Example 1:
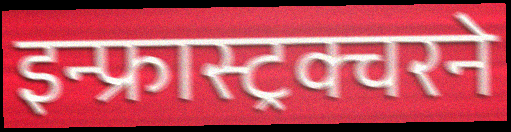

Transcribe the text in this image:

इन्फ्रास्ट्रक्चरने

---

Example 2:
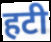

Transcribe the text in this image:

हटी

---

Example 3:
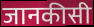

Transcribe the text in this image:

जानकीसी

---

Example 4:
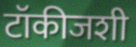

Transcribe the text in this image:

टॉकीजशी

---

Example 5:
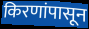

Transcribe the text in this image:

किरणांपासून